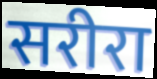
सरीरा